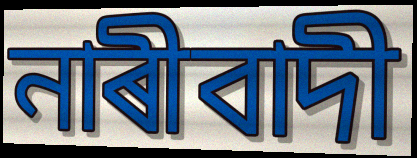
নাৰীবাদী